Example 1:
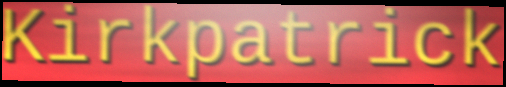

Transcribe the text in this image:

Kirkpatrick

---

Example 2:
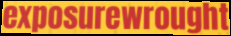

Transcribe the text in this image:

exposurewrought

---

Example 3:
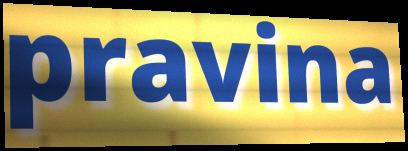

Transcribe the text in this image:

pravina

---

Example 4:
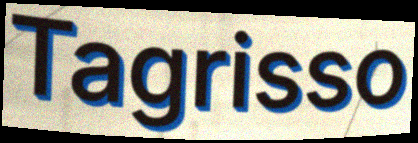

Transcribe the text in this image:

Tagrisso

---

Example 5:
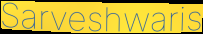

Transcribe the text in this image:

Sarveshwaris